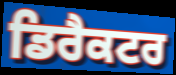
ਡਿਰੈਕਟਰ